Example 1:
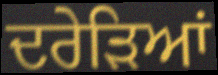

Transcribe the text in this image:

ਦਰੇੜਿਆਂ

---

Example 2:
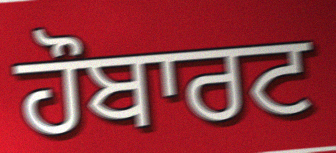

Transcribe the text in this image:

ਹੌਬਾਰਟ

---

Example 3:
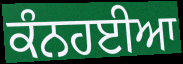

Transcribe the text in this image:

ਕੰਨਹਈਆ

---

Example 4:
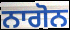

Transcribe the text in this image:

ਨਾਗੋਨ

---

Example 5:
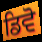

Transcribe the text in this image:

ਡਿਵੋ